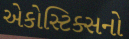
એકોસ્ટિક્સનો